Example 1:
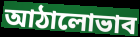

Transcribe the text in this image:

আঠালোভাব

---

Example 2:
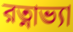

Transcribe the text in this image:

রত্নাভ্যা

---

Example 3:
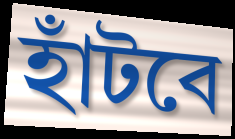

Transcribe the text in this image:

হাঁটবে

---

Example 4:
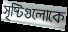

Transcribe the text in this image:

সৃষ্টিগুলোকে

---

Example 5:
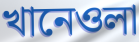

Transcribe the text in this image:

খানেওলা